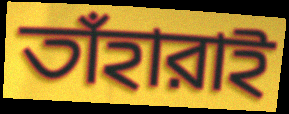
তাঁহারাই